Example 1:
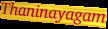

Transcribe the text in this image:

Thaninayagam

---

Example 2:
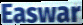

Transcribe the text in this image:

Easwar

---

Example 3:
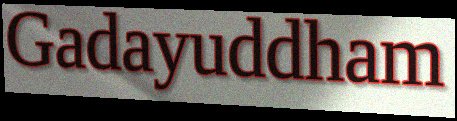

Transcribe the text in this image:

Gadayuddham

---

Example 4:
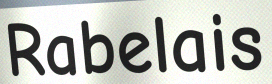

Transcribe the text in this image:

Rabelais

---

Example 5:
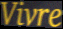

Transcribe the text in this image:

Vivre